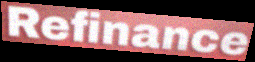
Refinance